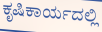
ಕೃಷಿಕಾರ್ಯದಲ್ಲಿ